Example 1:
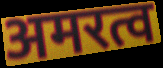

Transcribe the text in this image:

अमरत्व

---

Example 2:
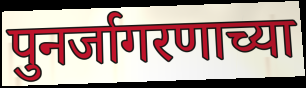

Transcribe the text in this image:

पुनर्जागरणाच्या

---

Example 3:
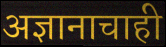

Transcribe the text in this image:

अज्ञानाचाही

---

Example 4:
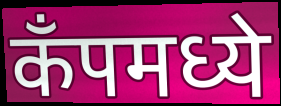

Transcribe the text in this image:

कॅंपमध्ये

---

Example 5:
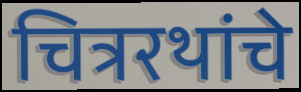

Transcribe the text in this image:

चित्ररथांचे